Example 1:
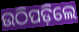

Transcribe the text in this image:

ଉଠିପଡ଼ିଲେ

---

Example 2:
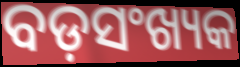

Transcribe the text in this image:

ବଡ଼ସଂଖ୍ୟକ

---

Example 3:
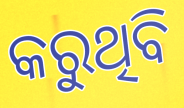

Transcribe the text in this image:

କରୁଥିବି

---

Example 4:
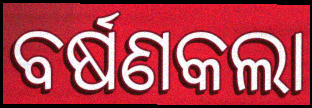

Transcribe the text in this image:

ବର୍ଷଣକଲା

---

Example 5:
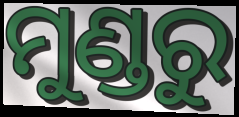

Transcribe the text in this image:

ମୁଣ୍ଡରୁ